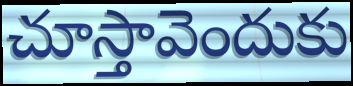
చూస్తావెందుకు